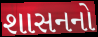
શાસનનો